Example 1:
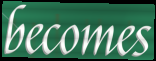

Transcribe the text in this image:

becomes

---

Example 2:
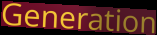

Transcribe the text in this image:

Generation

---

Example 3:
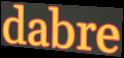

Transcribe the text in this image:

dabre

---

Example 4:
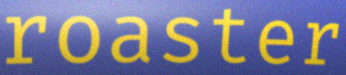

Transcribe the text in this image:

roaster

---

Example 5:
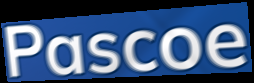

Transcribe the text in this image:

Pascoe